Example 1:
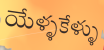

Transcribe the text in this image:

యేళ్ళకేళ్ళు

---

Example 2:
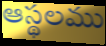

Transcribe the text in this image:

ఆస్థలము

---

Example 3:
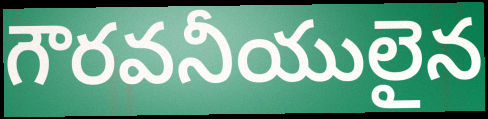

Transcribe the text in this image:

గౌరవనీయులైన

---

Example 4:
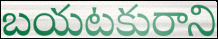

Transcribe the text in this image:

బయటకురాని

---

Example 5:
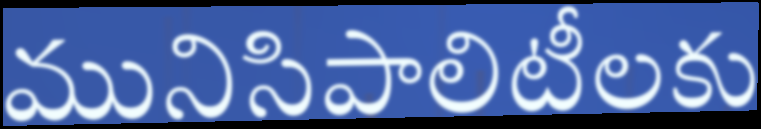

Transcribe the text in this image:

మునిసిపాలిటీలకు